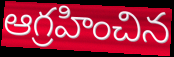
ఆగ్రహించిన